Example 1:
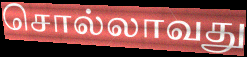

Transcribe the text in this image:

சொல்லாவது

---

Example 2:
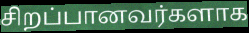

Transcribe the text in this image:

சிறப்பானவர்களாக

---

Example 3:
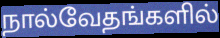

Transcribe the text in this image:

நால்வேதங்களில்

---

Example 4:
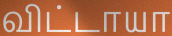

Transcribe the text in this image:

விட்டாயா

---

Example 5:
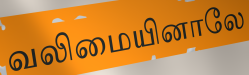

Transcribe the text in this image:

வலிமையினாலே